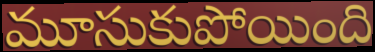
మూసుకుపోయింది